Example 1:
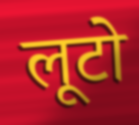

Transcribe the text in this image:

लूटो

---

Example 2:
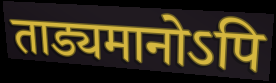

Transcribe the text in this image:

ताड्यमानोऽपि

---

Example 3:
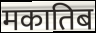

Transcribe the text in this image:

मकातिब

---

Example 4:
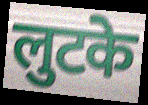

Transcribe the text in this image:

लुटके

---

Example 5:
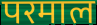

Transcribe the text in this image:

परमाल